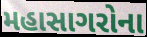
મહાસાગરોના